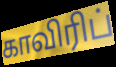
காவிரிப்